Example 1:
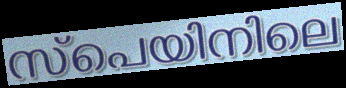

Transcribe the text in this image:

സ്‌പെയിനിലെ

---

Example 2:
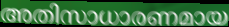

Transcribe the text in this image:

അതിസാധാരണമായ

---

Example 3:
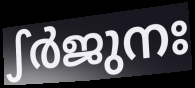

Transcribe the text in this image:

ഽർജുനഃ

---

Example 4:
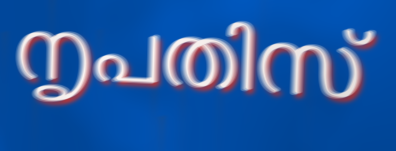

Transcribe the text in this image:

നൃപതിസ്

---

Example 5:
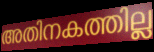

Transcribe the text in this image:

അതിനകത്തില്ല